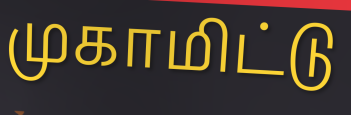
முகாமிட்டு